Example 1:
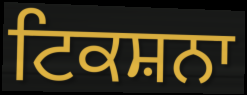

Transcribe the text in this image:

ਟਿਕਸ਼ਨਾ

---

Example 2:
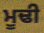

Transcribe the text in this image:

ਮੂਢੀ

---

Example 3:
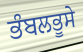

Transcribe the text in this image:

ਭੰਬਲਭੂਸੇ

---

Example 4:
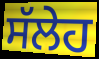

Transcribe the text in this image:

ਸੱਲੇਹ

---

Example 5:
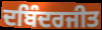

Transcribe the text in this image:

ਦਬਿੰਦਰਜੀਤ